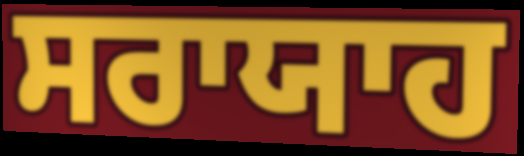
ਸਰਾਯਾਹ